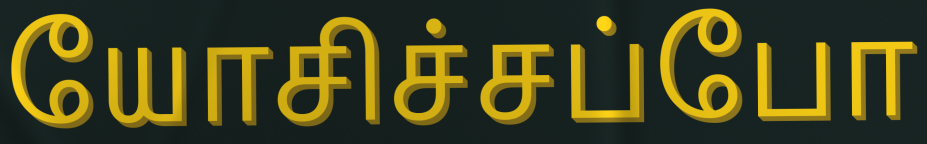
யோசிச்சப்போ